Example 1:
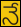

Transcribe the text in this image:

నే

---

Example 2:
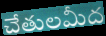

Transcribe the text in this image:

చేతులమీద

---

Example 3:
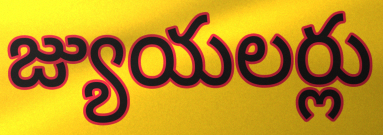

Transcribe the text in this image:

జ్యుయలర్లు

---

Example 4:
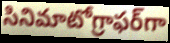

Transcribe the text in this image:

సినిమాటోగ్రాఫర్‌గా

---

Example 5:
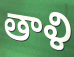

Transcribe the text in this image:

తాళి